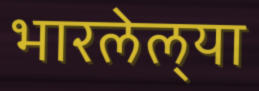
भारलेल्या